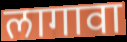
लागावा